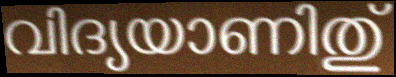
വിദ്യയാണിതു്